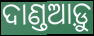
ଦାଣ୍ଡଆଡ଼ୁ